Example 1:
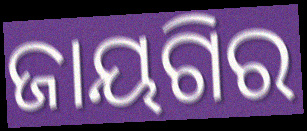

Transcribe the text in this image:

ଜାୟଗିର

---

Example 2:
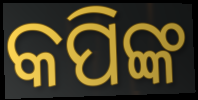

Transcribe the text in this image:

କପିଙ୍କ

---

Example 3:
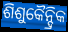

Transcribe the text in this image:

ଶିଶୁକୈନ୍ଦ୍ରିକ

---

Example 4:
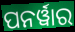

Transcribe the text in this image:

ପନର୍ୱାର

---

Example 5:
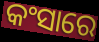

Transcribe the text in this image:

କଂସାରେ